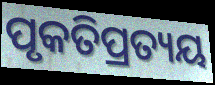
ପୃକତିପ୍ରତ୍ୟୟ